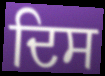
ਦਿਸ